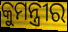
କୁମନ୍ତ୍ରୀର